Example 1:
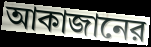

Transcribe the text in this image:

আকাজানের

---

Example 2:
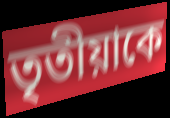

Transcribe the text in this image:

তৃতীয়াকে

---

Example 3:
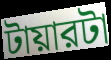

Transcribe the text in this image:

টায়ারটা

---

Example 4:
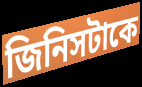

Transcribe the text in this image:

জিনিসটাকে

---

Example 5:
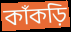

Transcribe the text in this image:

কাঁকড়ি